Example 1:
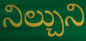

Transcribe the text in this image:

నిల్చుని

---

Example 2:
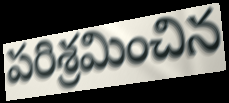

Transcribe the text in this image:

పరిశ్రమించిన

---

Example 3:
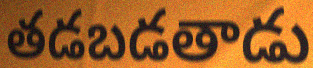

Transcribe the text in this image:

తడబడతాడు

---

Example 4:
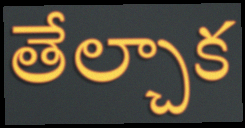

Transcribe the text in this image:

తేల్చాక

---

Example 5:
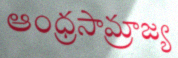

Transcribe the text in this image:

ఆంధ్రసామ్రాజ్య